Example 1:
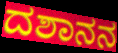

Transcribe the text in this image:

ದಶಾನನ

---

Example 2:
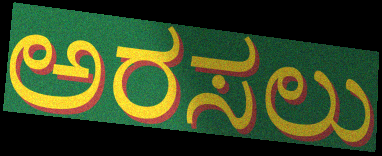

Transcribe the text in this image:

ಅರಸಲು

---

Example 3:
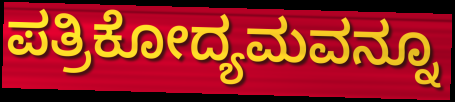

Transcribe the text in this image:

ಪತ್ರಿಕೋದ್ಯಮವನ್ನೂ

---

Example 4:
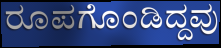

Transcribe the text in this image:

ರೂಪಗೊಂಡಿದ್ದವು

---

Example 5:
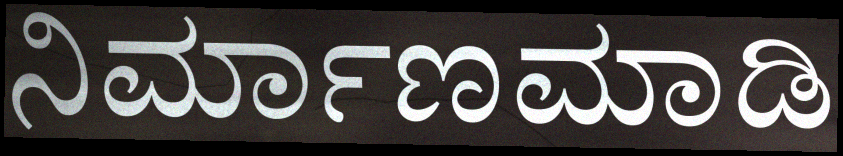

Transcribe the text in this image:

ನಿರ್ಮಾಣಮಾಡಿ